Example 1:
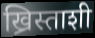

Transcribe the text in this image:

ख्रिस्ताशी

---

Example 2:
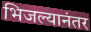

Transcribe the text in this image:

भिजल्यानंतर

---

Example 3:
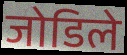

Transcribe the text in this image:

जोडिले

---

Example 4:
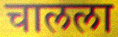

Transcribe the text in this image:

चालला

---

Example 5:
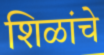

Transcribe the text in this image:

शिळांचे